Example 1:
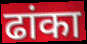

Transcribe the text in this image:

ढांका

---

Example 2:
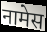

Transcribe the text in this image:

नामेस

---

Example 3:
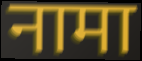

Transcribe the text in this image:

नामा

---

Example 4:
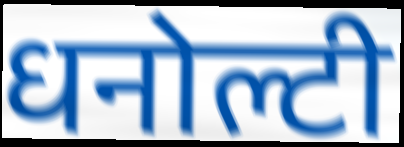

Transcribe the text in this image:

धनोल्‍टी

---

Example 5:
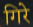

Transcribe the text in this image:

गिरे